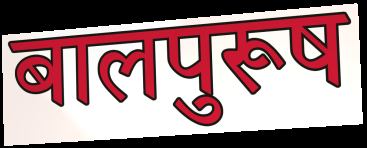
बालपुरूष